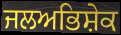
ਜਲਅਭਿਸ਼ੇਕ